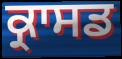
ਕ੍ਰਾਸਡ